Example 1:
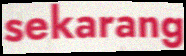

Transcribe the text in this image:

sekarang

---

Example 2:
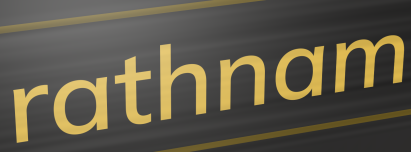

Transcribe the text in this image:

rathnam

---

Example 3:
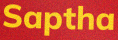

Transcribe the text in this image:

Saptha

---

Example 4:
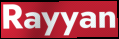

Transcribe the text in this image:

Rayyan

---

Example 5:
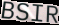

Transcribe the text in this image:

BSIR